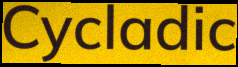
Cycladic